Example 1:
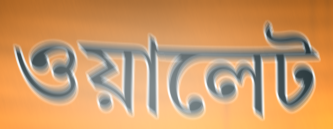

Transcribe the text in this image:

ওয়ালেট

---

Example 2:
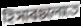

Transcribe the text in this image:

হিসাবগুলোতে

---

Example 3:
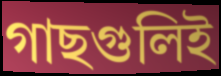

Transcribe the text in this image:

গাছগুলিই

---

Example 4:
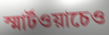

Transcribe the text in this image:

স্মার্টওয়াচেও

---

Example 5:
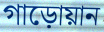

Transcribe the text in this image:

গাড়োয়ান